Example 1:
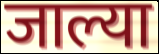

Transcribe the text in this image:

जाल्या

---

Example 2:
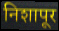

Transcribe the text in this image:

निशापूर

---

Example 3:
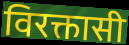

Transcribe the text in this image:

विरक्तासी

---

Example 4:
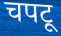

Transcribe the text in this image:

चपटू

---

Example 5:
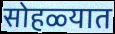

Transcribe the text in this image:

सोहळ्यात